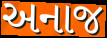
અનાજ